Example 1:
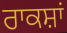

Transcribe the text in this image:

ਰਾਕਸ਼ਾਂ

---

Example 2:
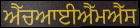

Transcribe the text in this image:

ਐੱਚਆਈਐੱਮਐੱਸ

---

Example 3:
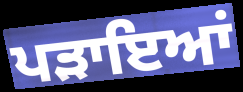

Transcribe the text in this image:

ਪੜਾਇਆਂ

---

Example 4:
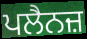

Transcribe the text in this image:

ਪਲੈਨਜ਼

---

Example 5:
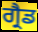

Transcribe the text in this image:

ਗ੍ਰੈਡ